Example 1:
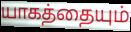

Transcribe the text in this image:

யாகத்தையும்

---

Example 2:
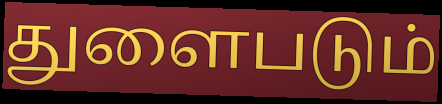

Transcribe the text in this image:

துளைபடும்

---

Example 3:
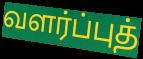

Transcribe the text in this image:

வளர்ப்புத்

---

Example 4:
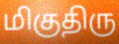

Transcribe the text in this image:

மிகுதிரு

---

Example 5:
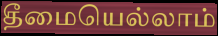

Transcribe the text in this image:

தீமையெல்லாம்